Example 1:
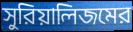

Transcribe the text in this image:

সুরিয়ালিজমের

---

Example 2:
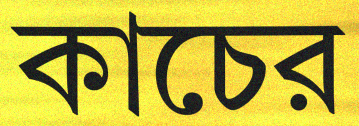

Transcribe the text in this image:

কাচের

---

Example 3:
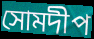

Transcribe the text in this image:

সোমদীপ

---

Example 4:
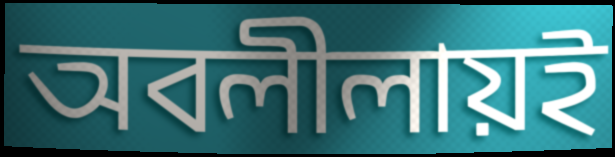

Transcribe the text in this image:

অবলীলায়ই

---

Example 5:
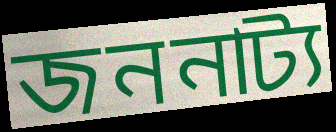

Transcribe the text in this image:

জননাট্য